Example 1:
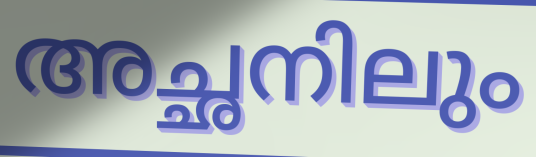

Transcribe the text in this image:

അച്ഛനിലും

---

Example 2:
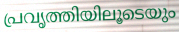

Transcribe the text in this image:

പ്രവൃത്തിയിലൂടെയും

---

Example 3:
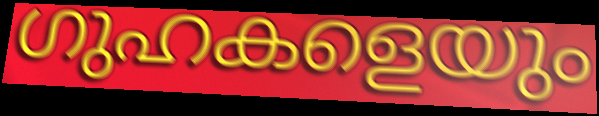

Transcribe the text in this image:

ഗുഹകളെയും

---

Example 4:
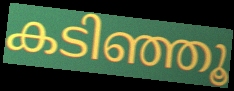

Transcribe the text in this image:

കടിഞ്ഞൂ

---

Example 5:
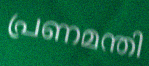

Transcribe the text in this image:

പ്രണമന്തി